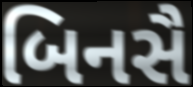
બિનસૈ